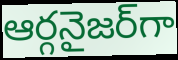
ఆర్గనైజర్‌గా